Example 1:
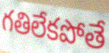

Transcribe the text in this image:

గతిలేకపోతే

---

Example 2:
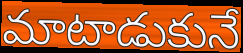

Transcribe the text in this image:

మాటాడుకునే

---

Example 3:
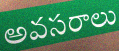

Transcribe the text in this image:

అవసరాలు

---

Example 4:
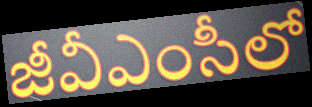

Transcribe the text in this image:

జీవీఎంసీలో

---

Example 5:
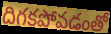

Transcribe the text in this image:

దిగకపోవడంతో